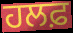
ਹਲਫ਼